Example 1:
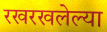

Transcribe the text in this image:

रखरखलेल्या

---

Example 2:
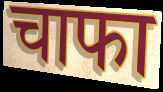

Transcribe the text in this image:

चाफा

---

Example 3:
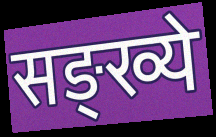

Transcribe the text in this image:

सङ्ख्ये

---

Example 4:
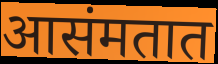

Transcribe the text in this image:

आसंमतात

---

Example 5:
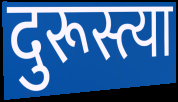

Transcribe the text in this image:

दुरूस्त्या